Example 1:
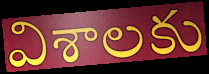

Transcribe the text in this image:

విశాలకు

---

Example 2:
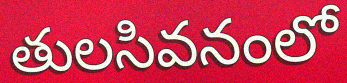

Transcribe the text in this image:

తులసివనంలో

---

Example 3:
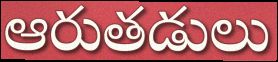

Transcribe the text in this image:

ఆరుతడులు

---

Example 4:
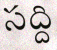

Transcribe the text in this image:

సద్ది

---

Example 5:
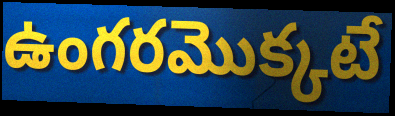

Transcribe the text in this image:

ఉంగరమొక్కటే